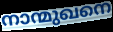
നാന്മുഖനെ